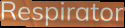
Respirator